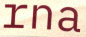
rna